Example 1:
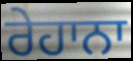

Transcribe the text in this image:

ਰੇਹਾਨਾ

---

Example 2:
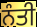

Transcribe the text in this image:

ਨੰਤੀ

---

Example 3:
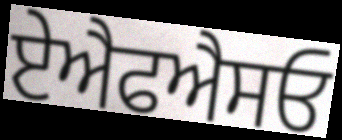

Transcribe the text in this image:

ਏਐਫਐਸਓ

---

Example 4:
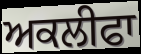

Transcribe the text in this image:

ਅਕਲੀਫਾ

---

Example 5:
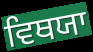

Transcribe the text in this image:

ਵਿਥਯਾ